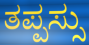
ತಪ್ಪಸ್ಸು